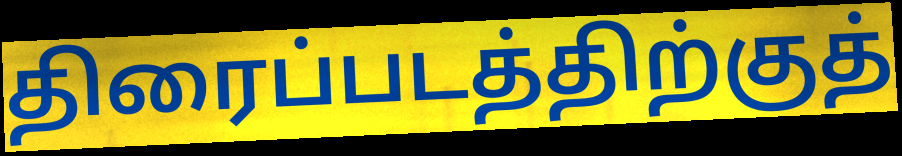
திரைப்படத்திற்குத்